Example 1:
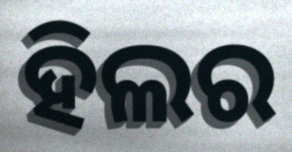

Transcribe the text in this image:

ହିଲର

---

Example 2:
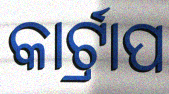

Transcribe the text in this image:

କାର୍ଟ୍ରାପ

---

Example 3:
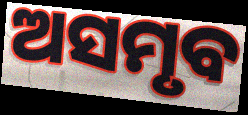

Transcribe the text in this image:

ଅସମୃବ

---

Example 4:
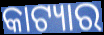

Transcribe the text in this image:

କାଟ୍ୟାର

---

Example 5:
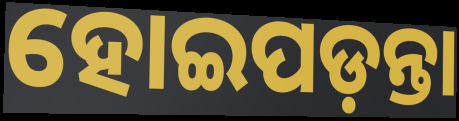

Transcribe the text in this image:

ହୋଇପଡ଼ନ୍ତା